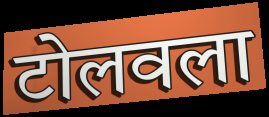
टोलवला